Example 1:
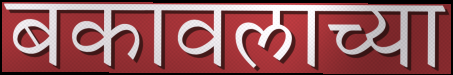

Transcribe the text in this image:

बकावलाच्या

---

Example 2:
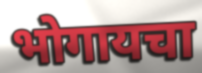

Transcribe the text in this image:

भोगायचा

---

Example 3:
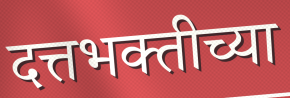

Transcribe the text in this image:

दत्तभक्तीच्या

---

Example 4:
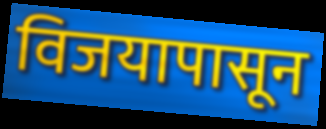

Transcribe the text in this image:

विजयापासून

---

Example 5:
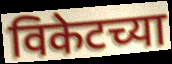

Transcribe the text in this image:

विकेटच्या